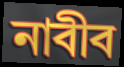
নাবীব